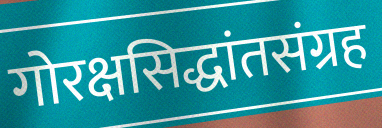
गोरक्षसिद्धांतसंग्रह